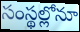
సంస్థల్లోనూ